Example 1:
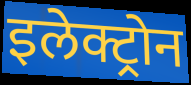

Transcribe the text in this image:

इलेक्ट्रोन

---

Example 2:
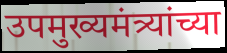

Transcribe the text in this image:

उपमुख्यमंत्र्यांच्या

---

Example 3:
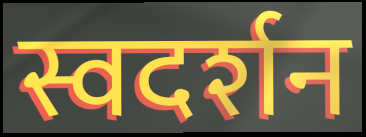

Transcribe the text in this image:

स्वदर्शन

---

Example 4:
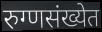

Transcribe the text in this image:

रुग्णसंख्येत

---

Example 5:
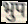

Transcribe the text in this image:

भुप